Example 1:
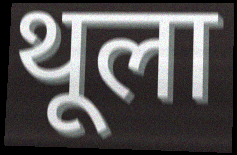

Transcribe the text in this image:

थूला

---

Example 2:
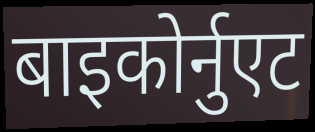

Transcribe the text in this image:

बाइकोर्नुएट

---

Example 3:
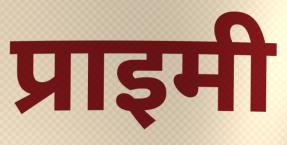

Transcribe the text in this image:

प्राइमी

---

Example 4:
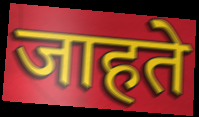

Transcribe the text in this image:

जाहते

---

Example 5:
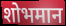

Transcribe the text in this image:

शोभमान